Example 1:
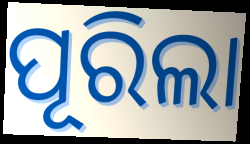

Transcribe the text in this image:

ପୂରିଲା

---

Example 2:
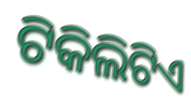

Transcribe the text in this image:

ଟିକିଲିଟିଏ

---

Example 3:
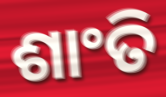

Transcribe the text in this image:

ଶାଂତି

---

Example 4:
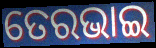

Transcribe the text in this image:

ତେରଭାଇ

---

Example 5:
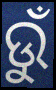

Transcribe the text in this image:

ଉୁଁ